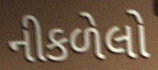
નીકળેલો